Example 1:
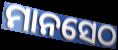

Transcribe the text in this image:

ମାନସେଠ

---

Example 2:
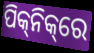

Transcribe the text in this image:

ପିକ୍‌ନିକ୍‌ରେ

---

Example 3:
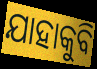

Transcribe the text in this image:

ଯାହାକୁବି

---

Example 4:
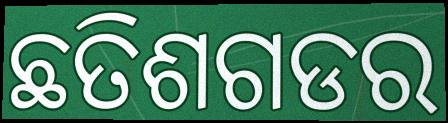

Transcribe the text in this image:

ଛତିଶଗଡର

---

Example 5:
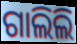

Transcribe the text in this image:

ଗାଲିଲି